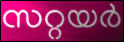
സറ്റയർ